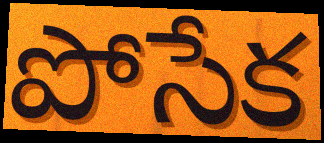
పోసేక